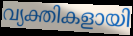
വ്യക്തികളായി